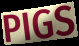
PIGS